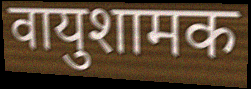
वायुशामक